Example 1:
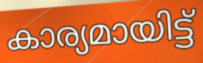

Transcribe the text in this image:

കാര്യമായിട്ട്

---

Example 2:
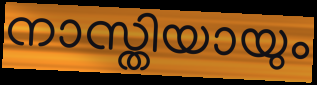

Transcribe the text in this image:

നാസ്തിയായും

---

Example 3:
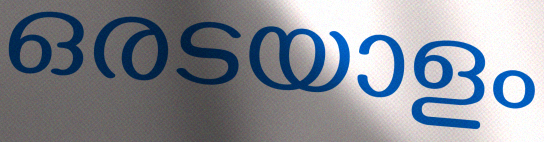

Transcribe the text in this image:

ഒരടയാളം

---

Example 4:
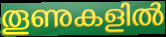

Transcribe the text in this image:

തൂണുകളിൽ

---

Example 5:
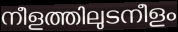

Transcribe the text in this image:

നീളത്തിലുടനീളം